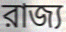
রাজ্য